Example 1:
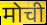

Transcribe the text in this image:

मोची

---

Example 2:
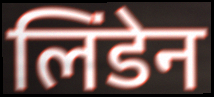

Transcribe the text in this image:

लिंडेन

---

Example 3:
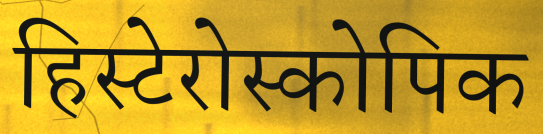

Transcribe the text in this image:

हिस्टेरोस्कोपिक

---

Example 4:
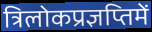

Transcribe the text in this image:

त्रिलोकप्रज्ञप्तिमें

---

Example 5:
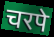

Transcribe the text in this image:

चरपे